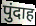
पुंदाह